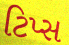
ટિપ્સ